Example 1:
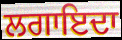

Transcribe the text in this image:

ਲਗਾਇਦਾ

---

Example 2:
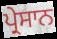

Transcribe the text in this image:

ਪ੍ਰੇਸਾਨ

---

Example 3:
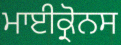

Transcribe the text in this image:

ਮਾਈਕ੍ਰੋਨਸ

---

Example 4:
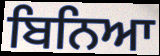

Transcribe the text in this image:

ਬਿਨਿਆ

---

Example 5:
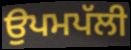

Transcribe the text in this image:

ਉਪਮਪੱਲੀ